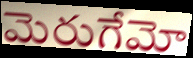
మెరుగేమో